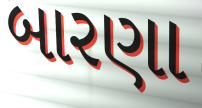
બારણા